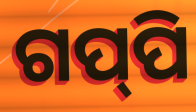
ଗପ୍‌ପି